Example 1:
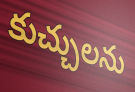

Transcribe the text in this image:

కుచ్చులను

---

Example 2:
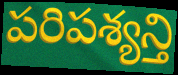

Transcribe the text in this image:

పరిపశ్యన్తి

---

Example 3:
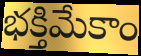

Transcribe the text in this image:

భక్తిమేకాం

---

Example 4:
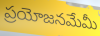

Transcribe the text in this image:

ప్రయోజనమేమీ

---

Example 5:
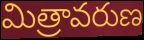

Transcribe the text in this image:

మిత్రావరుణ